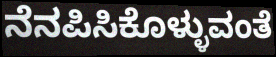
ನೆನಪಿಸಿಕೊಳ್ಳುವಂತೆ